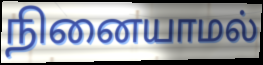
நினையாமல்